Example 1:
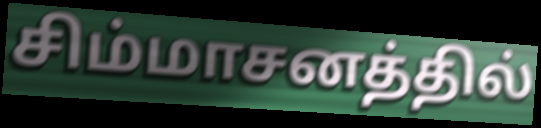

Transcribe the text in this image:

சிம்மாசனத்தில்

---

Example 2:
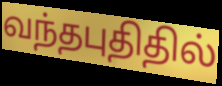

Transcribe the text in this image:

வந்தபுதிதில்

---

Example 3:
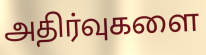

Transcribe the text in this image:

அதிர்வுகளை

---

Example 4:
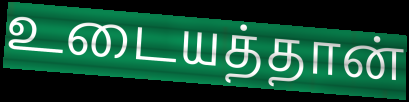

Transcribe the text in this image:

உடையத்தான்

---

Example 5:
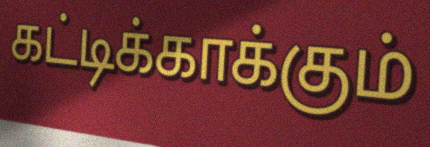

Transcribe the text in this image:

கட்டிக்காக்கும்